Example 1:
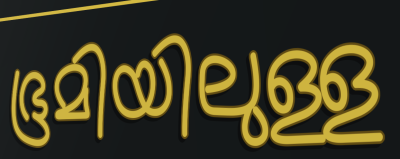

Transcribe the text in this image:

ഭൂമിയിലുള്ള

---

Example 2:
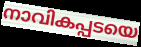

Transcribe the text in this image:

നാവികപ്പടയെ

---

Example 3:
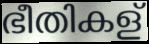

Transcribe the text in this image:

ഭീതികള്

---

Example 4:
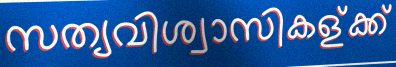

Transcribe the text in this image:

സത്യവിശ്വാസികള്ക്ക്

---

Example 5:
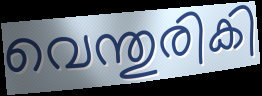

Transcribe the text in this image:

വെന്തുരികി